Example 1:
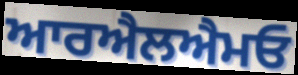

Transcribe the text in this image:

ਆਰਐਲਐਮਓ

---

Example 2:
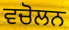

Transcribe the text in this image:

ਵਚੋਲਨ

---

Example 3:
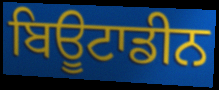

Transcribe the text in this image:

ਬਿਊਟਾਡੀਨ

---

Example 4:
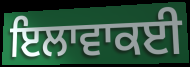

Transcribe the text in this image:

ਇਲਾਵਾਕਈ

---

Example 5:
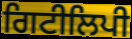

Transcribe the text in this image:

ਗਿਟੀਲਿਪੀ